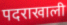
पदराखाली